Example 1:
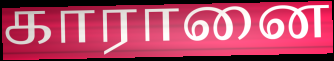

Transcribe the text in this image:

காரானை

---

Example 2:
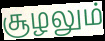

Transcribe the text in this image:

சூழலும்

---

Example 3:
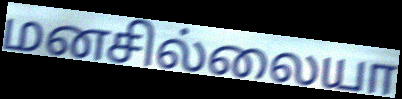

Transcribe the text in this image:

மனசில்லையா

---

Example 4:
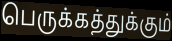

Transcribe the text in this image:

பெருக்கத்துக்கும்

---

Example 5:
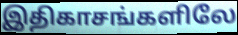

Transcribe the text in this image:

இதிகாசங்களிலே